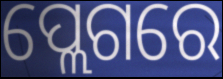
ପ୍ଲେଗରେ